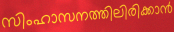
സിംഹാസനത്തിലിരിക്കാൻ